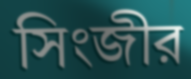
সিংজীর